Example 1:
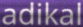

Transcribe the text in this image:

adikal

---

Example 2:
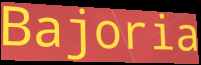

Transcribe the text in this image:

Bajoria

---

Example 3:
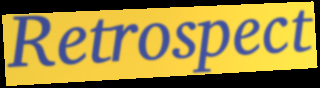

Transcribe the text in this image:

Retrospect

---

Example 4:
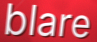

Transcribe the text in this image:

blare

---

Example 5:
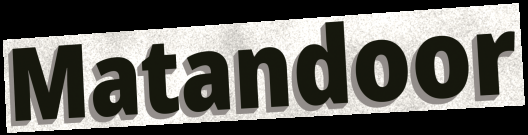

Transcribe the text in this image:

Matandoor